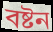
বষ্টন